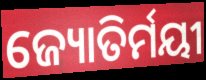
ଜ୍ୟୋତିର୍ମୟୀ